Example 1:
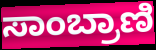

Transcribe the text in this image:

ಸಾಂಬ್ರಾಣಿ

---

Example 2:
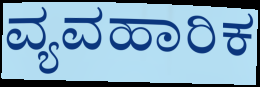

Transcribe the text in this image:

ವ್ಯವಹಾರಿಕ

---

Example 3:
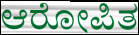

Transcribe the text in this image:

ಆರೋಪಿತ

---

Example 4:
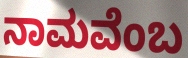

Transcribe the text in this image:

ನಾಮವೆಂಬ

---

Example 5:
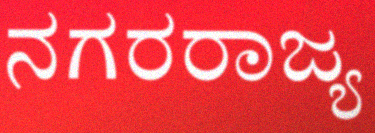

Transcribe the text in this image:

ನಗರರಾಜ್ಯ